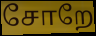
சோறே